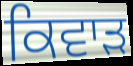
ਕਿਵਾੜ